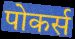
पोकर्स